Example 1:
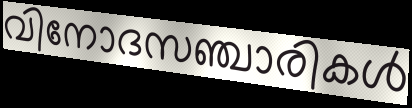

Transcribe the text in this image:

വിനോദസഞ്ചാരികൾ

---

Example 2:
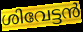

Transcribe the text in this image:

ശിവേട്ടൻ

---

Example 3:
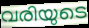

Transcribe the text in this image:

വരിയുടെ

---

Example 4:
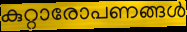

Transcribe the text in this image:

കുറ്റാരോപണങ്ങൾ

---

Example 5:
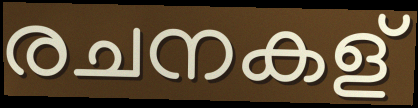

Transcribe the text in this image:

രചനകള്